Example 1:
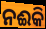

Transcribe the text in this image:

ନଈକି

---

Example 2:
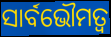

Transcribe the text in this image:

ସାର୍ବଭୌମତ୍ଵ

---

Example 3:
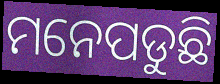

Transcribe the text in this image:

ମନେପଡୁଛି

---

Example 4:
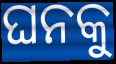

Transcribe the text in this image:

ଘନକୁ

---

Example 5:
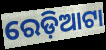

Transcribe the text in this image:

ରେଡ଼ିଆଟା